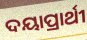
ଦୟାପ୍ରାର୍ଥୀ